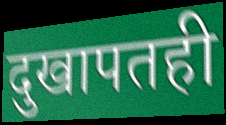
दुखापतही